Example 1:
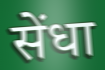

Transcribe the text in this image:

सेंधा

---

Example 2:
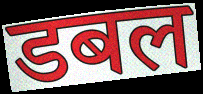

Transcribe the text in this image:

डबल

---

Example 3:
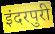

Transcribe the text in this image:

इंदरपुरी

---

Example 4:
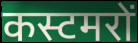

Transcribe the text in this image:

कस्टमरों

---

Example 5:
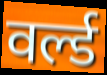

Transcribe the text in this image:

वर्ल्‍ड